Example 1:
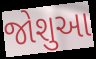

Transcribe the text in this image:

જોશુઆ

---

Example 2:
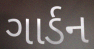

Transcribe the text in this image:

ગાર્ડન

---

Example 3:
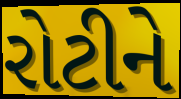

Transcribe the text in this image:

રોટીને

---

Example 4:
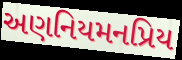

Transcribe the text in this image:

અણનિયમનપ્રિય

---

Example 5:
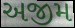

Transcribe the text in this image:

અજીમ